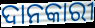
ଦାନକାରୀ